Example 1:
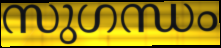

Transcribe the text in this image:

സുഗന്ധം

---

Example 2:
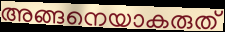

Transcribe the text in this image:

അങ്ങനെയാകരുത്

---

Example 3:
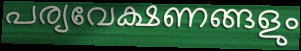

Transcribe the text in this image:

പര്യവേക്ഷണങ്ങളും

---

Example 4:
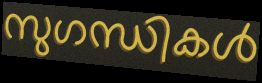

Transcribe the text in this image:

സുഗന്ധികൾ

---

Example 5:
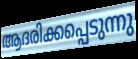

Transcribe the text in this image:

ആദരിക്കപ്പെടുന്നു